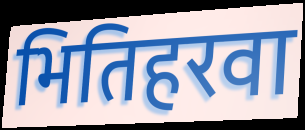
भितिहरवा